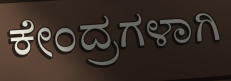
ಕೇಂದ್ರಗಳಾಗಿ